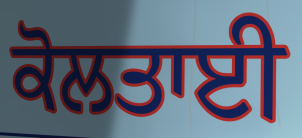
ਕੋਲਤਾਈ